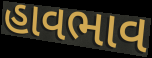
હાવભાવ